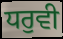
ਧਰੁਵੀ